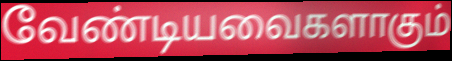
வேண்டியவைகளாகும்